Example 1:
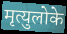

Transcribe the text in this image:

मृत्युलोके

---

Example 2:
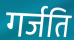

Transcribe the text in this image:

गर्जति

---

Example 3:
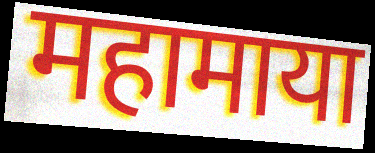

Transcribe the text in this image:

महामाया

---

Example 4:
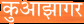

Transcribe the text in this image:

कुआझागर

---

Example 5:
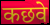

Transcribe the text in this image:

कछवे